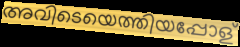
അവിടെയെത്തിയപ്പോള്